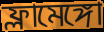
ফ্লামেঙ্গো